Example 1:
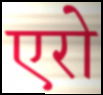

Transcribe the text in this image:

एरो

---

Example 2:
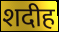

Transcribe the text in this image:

शदीह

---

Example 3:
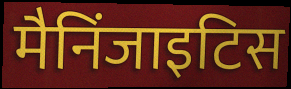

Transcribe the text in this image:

मैनिंजाइटिस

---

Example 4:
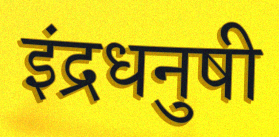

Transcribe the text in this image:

इंद्रधनुषी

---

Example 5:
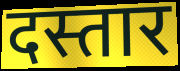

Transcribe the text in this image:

दस्तार